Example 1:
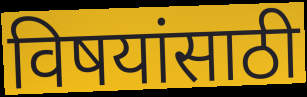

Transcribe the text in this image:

विषयांसाठी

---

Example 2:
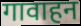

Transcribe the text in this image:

गावाहन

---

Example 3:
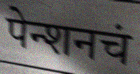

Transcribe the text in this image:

पेन्शनचं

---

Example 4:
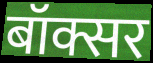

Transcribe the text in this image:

बॉक्सर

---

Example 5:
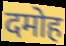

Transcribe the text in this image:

दमोह